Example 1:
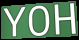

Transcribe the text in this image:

YOH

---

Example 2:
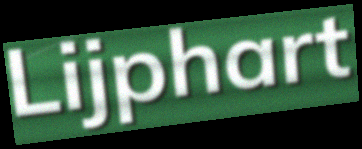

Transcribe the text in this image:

Lijphart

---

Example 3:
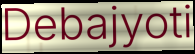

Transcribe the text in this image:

Debajyoti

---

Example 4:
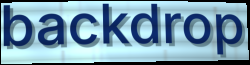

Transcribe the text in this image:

backdrop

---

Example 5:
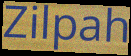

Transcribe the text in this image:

Zilpah